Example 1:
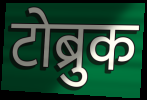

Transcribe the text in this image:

टोब्रुक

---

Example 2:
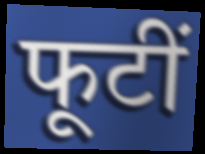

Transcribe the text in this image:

फूटीं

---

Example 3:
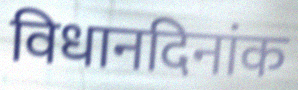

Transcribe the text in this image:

विधानदिनांक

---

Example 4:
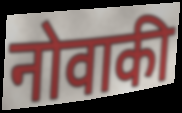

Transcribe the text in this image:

नोवाकी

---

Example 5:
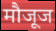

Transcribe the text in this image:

मौजूज